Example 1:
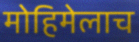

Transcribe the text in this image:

मोहिमेलाच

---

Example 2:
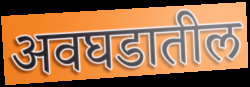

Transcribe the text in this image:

अवघडातील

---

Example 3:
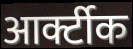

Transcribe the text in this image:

आर्क्टीक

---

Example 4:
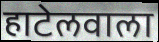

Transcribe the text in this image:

हाटेलवाला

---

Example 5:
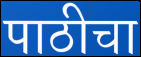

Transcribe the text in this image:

पाठीचा